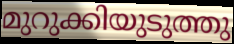
മുറുക്കിയുടുത്തു